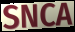
SNCA